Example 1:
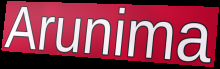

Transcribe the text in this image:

Arunima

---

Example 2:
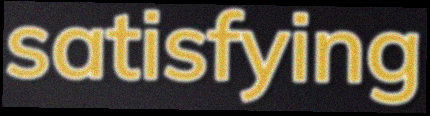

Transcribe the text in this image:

satisfying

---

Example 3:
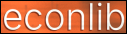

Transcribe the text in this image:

econlib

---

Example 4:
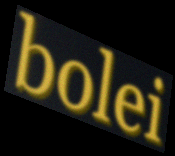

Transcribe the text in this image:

bolei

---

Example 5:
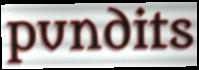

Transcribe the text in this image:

pundits